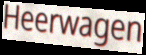
Heerwagen